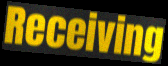
Receiving